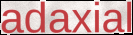
adaxial